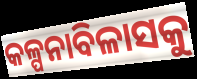
କଳ୍ପନାବିଳାସକୁ